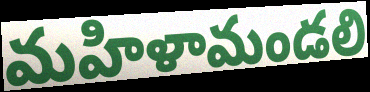
మహిళామండలి